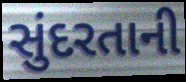
સુંદરતાની